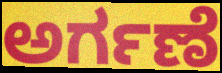
ಅರ್ಗಣೆ